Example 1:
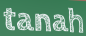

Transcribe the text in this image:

tanah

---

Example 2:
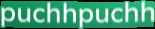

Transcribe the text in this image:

puchhpuchh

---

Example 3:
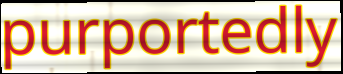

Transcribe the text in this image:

purportedly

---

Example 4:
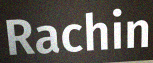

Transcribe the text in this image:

Rachin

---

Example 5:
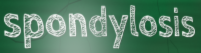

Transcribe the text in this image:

spondylosis